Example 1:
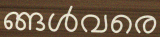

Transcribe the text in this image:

ങ്ങൾവരെ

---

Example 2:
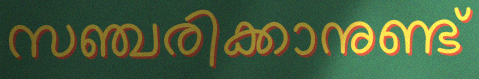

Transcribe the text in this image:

സഞ്ചരിക്കാനുണ്ട്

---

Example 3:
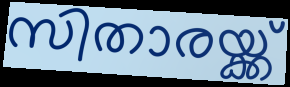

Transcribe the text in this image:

സിതാരയ്ക്ക്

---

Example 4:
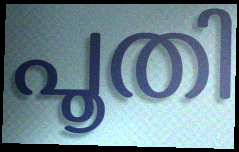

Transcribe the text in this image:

പൂതി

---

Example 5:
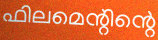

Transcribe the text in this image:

ഫിലമെന്റിന്റെ